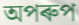
অপৰুপ